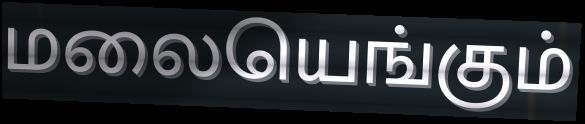
மலையெங்கும்